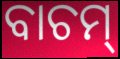
ବାଚମ୍